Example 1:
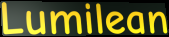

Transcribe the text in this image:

Lumilean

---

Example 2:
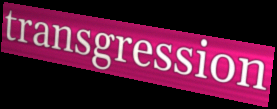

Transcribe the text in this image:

transgression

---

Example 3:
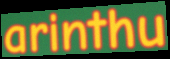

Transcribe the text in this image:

arinthu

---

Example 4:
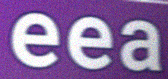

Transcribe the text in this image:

eea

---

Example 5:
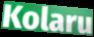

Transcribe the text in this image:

Kolaru